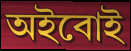
অইবোই